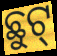
ଛୁଟ୍